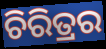
ଚିରିତ୍ରର